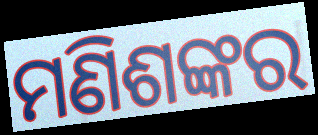
ମଣିଶଙ୍କର